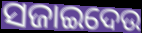
ସଜାଇଦେଉ